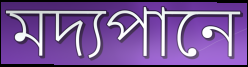
মদ্যপানে